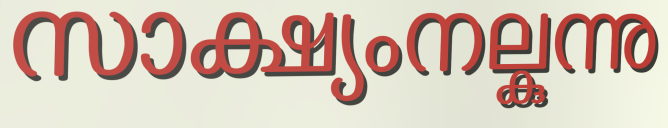
സാക്ഷ്യംനല്കുന്നു